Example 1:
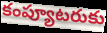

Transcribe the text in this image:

కంప్యూటరుకు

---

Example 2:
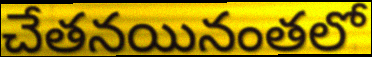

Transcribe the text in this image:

చేతనయినంతలో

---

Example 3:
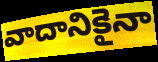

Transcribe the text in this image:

వాదానికైనా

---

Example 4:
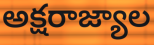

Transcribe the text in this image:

అక్షరాజ్యాల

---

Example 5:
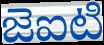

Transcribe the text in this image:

జెఐటి